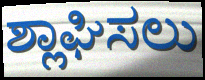
ಶ್ಲಾಘಿಸಲು